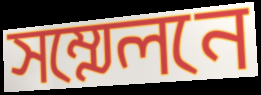
সম্মেলনে